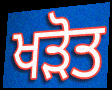
ਖੜੋਤ